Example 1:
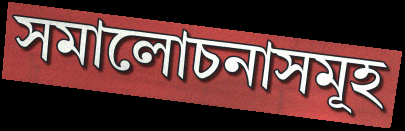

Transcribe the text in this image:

সমালোচনাসমূহ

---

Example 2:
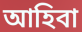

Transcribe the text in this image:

আহিবা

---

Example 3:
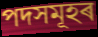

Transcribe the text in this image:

পদসমূহৰ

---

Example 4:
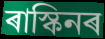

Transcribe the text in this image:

ৰাস্কিনৰ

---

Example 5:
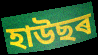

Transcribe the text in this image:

হাউছৰ